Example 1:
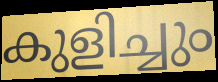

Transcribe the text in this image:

കുളിച്ചും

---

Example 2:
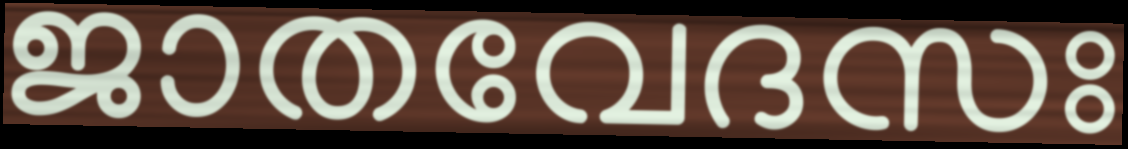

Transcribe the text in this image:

ജാതവേദസഃ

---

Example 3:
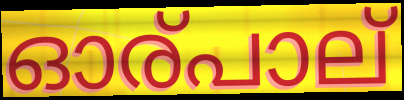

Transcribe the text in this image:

ഓര്പാല്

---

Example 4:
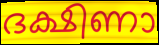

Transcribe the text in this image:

ദക്ഷിണാ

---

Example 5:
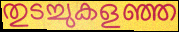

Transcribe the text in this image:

തുടച്ചുകളഞ്ഞ